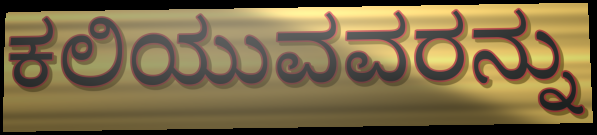
ಕಲಿಯುವವರನ್ನು